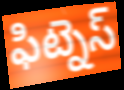
ఫిట్నెస్